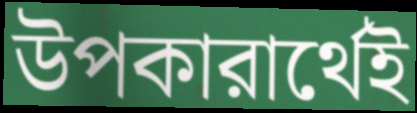
উপকারার্থেই